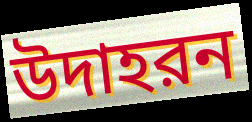
উদাহরন